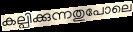
കല്പിക്കുന്നതുപോലെ